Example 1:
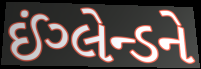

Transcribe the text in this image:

ઈંગ્લેન્ડને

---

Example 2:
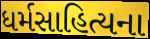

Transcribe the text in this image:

ધર્મસાહિત્યના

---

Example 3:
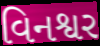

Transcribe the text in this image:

વિનશ્વર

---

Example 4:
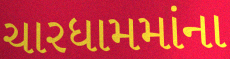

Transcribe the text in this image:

ચારધામમાંના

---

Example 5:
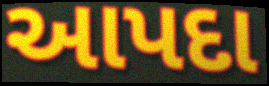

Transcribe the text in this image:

આપદા